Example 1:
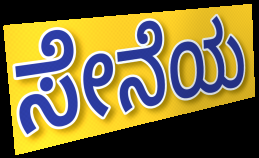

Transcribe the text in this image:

ಸೇನೆಯ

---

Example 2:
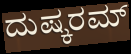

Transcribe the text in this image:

ದುಷ್ಕರಮ್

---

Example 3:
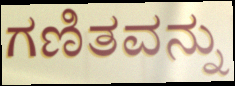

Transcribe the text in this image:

ಗಣಿತವನ್ನು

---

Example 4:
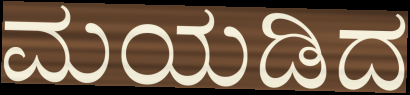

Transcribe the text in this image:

ಮಯಡಿದ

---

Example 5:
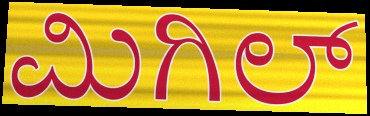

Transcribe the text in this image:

ಮಿಗಿಲ್